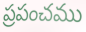
ప్రపంచము